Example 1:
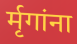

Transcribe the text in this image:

र्मृगांना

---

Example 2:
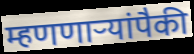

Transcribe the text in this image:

म्हणणाऱ्यांपैकी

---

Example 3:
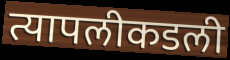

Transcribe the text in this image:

त्यापलीकडली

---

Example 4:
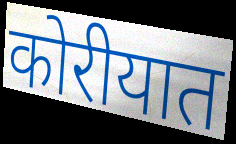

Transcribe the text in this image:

कोरीयात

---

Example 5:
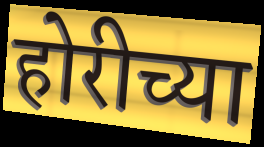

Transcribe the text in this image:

होरीच्या